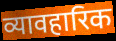
व्यावहारिक